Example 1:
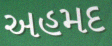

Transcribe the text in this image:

અહમદ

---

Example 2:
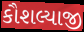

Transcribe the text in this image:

કૌશલ્યાજી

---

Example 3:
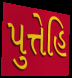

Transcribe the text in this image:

પુત્તેહિ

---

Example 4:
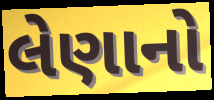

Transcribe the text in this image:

લેણાનો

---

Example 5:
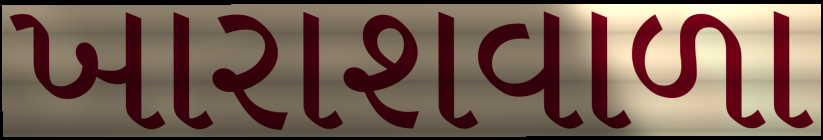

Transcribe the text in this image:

ખારાશવાળા